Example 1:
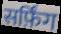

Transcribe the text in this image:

सर्फ़िंग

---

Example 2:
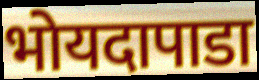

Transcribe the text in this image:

भोयदापाडा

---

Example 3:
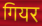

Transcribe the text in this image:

गियर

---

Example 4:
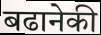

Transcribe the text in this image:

बढानेकी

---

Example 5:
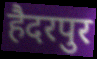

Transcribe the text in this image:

हैदरपुर